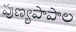
పుణ్యపాపాల